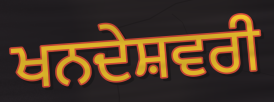
ਖਨਦੇਸ਼ਵਰੀ